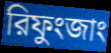
রিফুংজাং